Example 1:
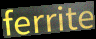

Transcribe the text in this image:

ferrite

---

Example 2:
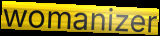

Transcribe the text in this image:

womanizer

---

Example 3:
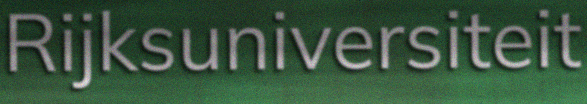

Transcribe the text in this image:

Rijksuniversiteit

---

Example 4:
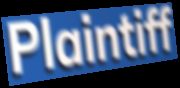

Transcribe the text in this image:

Plaintiff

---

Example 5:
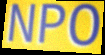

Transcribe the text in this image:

NPO